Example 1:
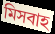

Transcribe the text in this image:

মিসবাহ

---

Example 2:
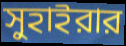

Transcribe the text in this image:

সুহাইরার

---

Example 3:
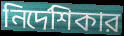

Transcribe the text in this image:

নির্দেশিকার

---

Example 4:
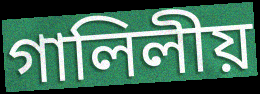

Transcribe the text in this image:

গালিলীয়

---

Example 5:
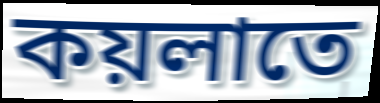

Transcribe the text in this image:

কয়লাতে